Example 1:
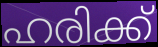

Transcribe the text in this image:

ഹരിക്ക്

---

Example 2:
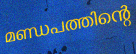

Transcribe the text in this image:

മണ്ഡപത്തിന്റെ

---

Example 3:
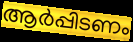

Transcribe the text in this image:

ആർപ്പിടണം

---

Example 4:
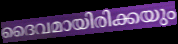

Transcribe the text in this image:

ദൈവമായിരിക്കയും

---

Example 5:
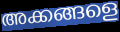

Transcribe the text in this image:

അക്കങ്ങളെ